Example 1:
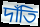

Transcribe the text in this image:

দাঁতি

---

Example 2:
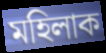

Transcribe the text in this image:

মহিলাক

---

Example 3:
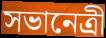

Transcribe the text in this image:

সভানেত্ৰী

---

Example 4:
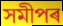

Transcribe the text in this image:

সমীপৰ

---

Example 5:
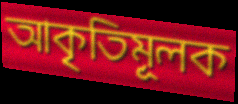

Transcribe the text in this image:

আকৃতিমূলক